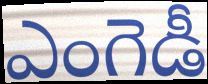
ఎంగెడీ